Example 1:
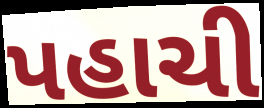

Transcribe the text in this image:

પહાચી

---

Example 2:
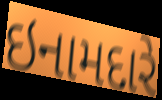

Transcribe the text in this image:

ઇનામદારે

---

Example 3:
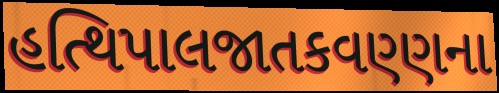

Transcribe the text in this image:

હત્થિપાલજાતકવણ્ણના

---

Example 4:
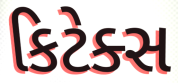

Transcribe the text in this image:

કિટેક્સ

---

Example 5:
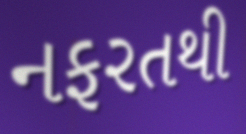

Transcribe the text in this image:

નફરતથી